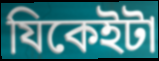
যিকেইটা